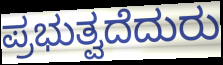
ಪ್ರಭುತ್ವದೆದುರು